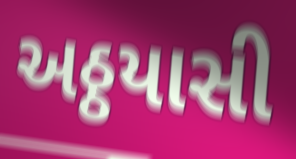
અઠ્ઠયાસી